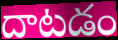
దాటడం